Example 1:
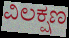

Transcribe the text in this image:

ವಿಲಕ್ಷಣ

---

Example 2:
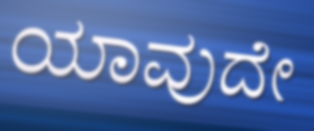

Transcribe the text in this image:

ಯಾವುದೇ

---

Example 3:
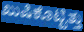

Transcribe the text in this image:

ಖುಷಿಕೊಟ್ಟಿತ್ತು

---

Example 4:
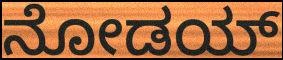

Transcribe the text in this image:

ನೋಡಯ್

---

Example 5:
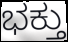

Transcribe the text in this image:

ಭಕ್ತು